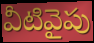
వీటివైపు